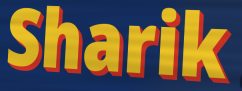
Sharik